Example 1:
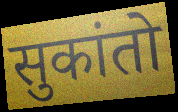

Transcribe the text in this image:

सुकांतो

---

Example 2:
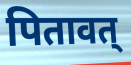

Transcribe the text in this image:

पितावत्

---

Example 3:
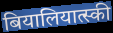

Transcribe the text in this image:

बियालियात्स्की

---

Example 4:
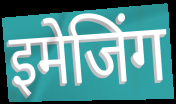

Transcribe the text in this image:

इमेजिंग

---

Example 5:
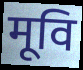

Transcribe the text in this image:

मूवि